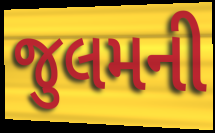
જુલમની